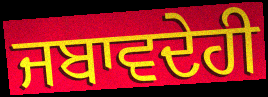
ਜਬਾਵਦੇਹੀ